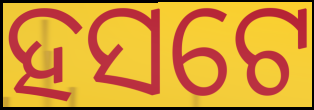
ହସଟେ